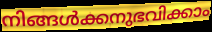
നിങ്ങൾക്കനുഭവിക്കാം